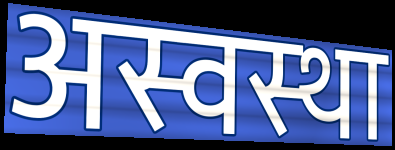
अस्वस्था